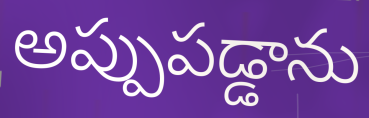
అప్పుపడ్డాను